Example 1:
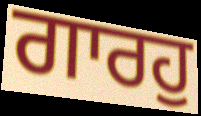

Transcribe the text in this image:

ਗਾਰਹੁ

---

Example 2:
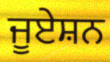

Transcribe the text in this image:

ਜੂਏਸ਼ਨ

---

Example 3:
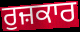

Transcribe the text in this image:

ਰੁਜ਼ਕਾਰ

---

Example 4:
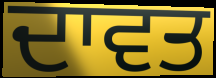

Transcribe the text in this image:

ਦਾਵਤ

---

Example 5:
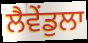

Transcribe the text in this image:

ਲੈਵੇਂਡੁਲਾ